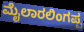
ಮೈಲಾರಲಿಂಗಪ್ಪ